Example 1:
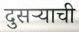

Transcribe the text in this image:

दुसऱ्याची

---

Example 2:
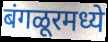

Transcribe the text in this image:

बंगळूरमध्ये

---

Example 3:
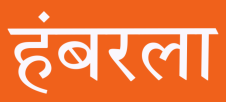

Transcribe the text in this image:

हंबरला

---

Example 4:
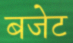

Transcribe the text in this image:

बजेट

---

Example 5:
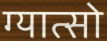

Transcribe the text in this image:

ग्यात्सो